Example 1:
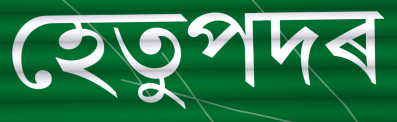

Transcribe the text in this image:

হেতুপদৰ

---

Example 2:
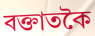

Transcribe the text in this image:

বক্তাতকৈ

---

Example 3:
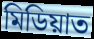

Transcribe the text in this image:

মিডিয়াত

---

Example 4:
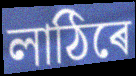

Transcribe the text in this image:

লাঠিৰে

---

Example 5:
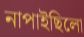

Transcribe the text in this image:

নাপাইছিলো